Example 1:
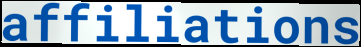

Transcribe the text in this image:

affiliations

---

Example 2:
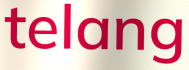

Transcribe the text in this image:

telang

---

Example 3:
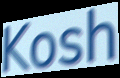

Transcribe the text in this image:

Kosh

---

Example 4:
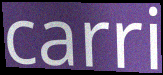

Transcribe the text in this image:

carri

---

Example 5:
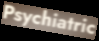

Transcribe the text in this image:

Psychiatric